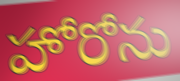
హోరోను